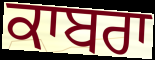
ਕਾਬਰਾ